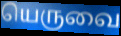
யெருவை